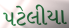
પટેલીયા